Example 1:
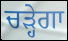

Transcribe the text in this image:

ਚੜ੍ਹੇਗਾ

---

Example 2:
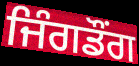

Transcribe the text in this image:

ਜਿੰਗਡੌਂਗ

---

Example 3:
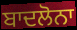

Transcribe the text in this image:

ਬਾਦਲੋਨਾ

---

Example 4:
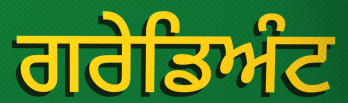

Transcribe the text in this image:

ਗਰੇਡਿਅੰਟ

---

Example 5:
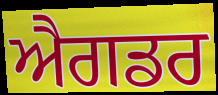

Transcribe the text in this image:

ਐਗਡਰ